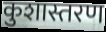
कुशास्तरण